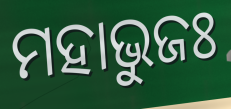
ମହାଭୁଜଃ